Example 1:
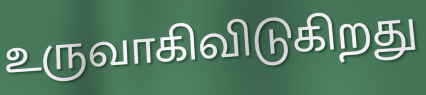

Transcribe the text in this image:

உருவாகிவிடுகிறது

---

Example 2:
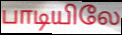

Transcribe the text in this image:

பாடியிலே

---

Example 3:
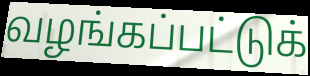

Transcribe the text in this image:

வழங்கப்பட்டுக்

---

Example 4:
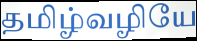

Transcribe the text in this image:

தமிழ்வழியே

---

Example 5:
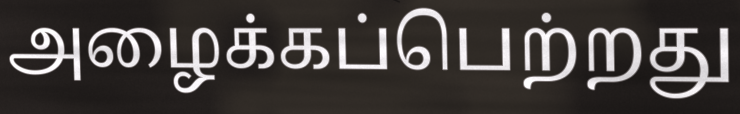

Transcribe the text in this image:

அழைக்கப்பெற்றது